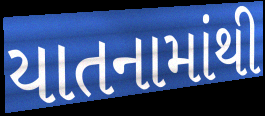
યાતનામાંથી